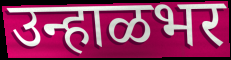
उन्हाळभर